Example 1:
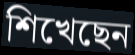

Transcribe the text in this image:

শিখেছেন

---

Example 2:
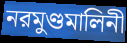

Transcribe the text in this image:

নরমুণ্ডমালিনী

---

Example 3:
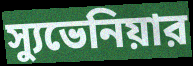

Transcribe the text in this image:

স্যুভেনিয়ার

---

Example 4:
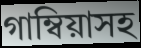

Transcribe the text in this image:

গাম্বিয়াসহ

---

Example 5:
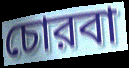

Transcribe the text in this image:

চোরবা